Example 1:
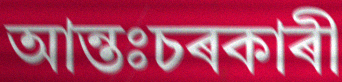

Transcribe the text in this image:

আন্তঃচৰকাৰী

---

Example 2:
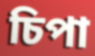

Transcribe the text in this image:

চিপা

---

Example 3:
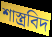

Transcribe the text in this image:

শাস্ত্ৰবিদ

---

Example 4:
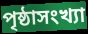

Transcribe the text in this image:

পৃষ্ঠাসংখ্যা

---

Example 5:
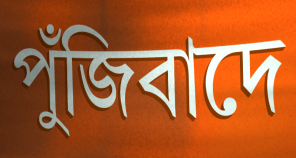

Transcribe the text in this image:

পুঁজিবাদে